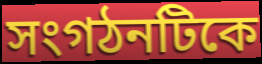
সংগঠনটিকে